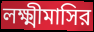
লক্ষ্মীমাসির